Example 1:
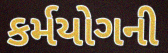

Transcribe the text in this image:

કર્મયોગની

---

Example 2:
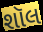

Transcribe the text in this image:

શૉલ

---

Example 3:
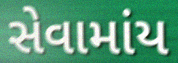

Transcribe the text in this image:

સેવામાંય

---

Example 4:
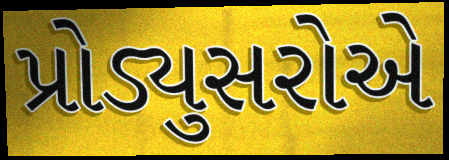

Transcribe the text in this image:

પ્રોડ્યુસરોએ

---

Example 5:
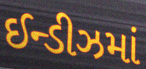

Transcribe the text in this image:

ઈન્ડીઝમાં